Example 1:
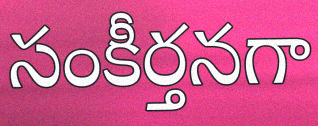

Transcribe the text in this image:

సంకీర్తనగా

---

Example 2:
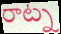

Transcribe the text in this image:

రాట్న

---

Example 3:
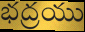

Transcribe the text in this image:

భద్రయు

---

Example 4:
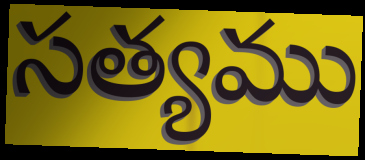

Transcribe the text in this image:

సత్యము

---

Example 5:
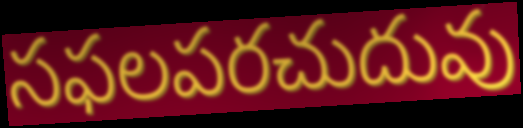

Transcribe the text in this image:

సఫలపరచుదువు